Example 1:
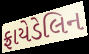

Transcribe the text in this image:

ફ્રાયેડેલિન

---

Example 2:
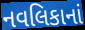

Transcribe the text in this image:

નવલિકાનાં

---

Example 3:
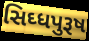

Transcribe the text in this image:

સિઘ્ધપુરૂષ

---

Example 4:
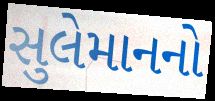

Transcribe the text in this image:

સુલેમાનનો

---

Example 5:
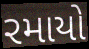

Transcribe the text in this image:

રમાયો